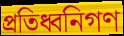
প্রতিধ্বনিগণ